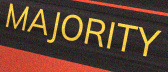
MAJORITY